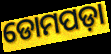
ଡୋମପଡ଼ା